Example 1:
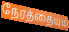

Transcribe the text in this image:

நேரத்தையும்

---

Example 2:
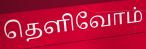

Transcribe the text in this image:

தெளிவோம்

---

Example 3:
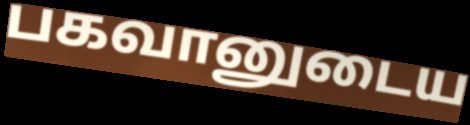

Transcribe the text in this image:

பகவானுடைய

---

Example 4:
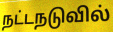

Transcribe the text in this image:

நட்டநடுவில்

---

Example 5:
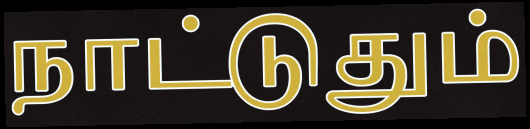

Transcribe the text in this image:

நாட்டுதும்